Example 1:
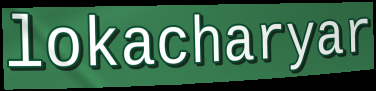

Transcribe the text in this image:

lokacharyar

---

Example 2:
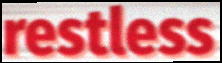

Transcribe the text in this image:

restless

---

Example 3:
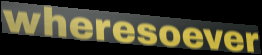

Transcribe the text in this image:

wheresoever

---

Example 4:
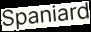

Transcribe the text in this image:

Spaniard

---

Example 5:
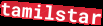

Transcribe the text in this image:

tamilstar